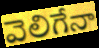
వెలిగేనా